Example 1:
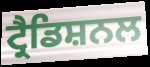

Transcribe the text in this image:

ਟ੍ਰੈਡਿਸ਼ਨਲ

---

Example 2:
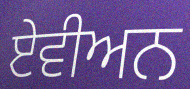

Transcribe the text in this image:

ਏਵੀਅਨ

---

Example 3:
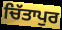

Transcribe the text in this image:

ਚਿੱਤਾਪੁਰ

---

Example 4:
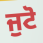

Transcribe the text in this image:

ਜੁਟੋ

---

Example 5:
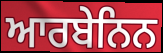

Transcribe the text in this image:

ਆਰਬੇਨਿਨ